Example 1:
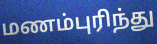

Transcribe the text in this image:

மணம்புரிந்து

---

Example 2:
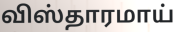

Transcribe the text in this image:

விஸ்தாரமாய்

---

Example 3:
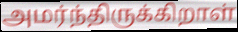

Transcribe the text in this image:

அமர்ந்திருக்கிறாள்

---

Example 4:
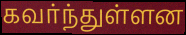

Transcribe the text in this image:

கவர்ந்துள்ளன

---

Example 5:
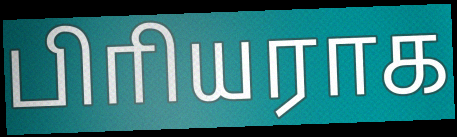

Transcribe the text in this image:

பிரியராக